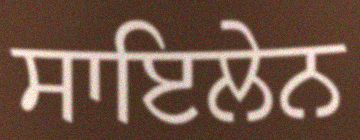
ਸਾਇਲੇਨ